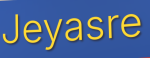
Jeyasre